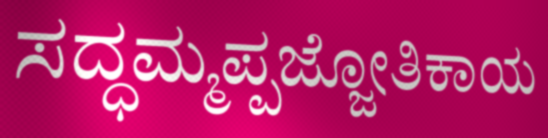
ಸದ್ಧಮ್ಮಪ್ಪಜ್ಜೋತಿಕಾಯ